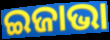
ଇଜାଭା